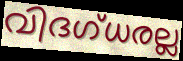
വിദഗ്ധരല്ല